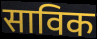
साविक